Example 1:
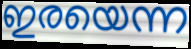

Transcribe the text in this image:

ഇരയെന്ന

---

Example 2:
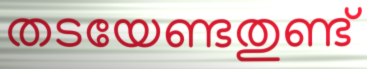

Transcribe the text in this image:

തടയേണ്ടതുണ്ട്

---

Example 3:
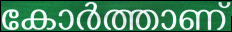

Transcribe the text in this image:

കോർത്താണ്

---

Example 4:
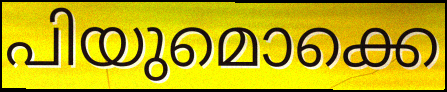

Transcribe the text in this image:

പിയുമൊക്കെ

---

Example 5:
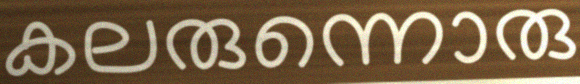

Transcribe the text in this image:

കലരുന്നൊരു